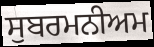
ਸੁਬਰਮਨੀਅਮ